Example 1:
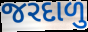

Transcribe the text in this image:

જરદાળુ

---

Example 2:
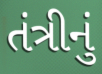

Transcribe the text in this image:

તંત્રીનું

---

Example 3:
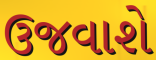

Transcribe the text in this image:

ઉજવાશે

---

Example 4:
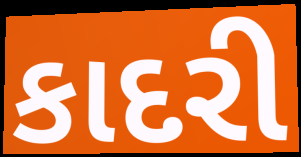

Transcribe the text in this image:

કાદરી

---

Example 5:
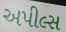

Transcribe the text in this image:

અપીલ્સ